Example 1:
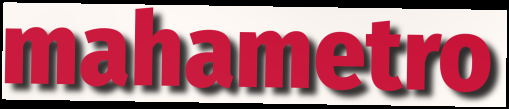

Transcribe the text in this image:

mahametro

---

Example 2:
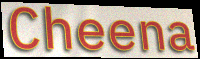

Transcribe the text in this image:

Cheena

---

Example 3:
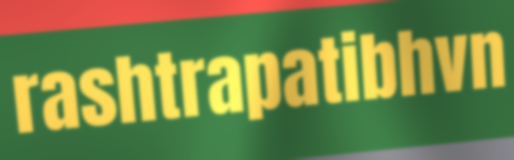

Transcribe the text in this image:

rashtrapatibhvn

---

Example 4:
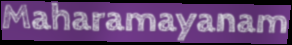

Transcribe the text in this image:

Maharamayanam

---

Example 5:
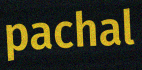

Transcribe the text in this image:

pachal